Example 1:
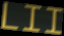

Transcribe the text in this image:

LII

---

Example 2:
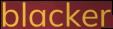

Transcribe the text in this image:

blacker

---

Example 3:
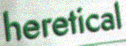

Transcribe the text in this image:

heretical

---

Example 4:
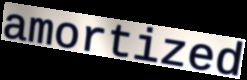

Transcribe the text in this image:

amortized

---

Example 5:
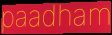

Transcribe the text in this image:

paadham